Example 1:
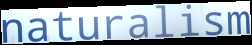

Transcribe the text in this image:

naturalism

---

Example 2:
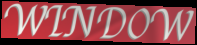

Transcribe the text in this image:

WINDOW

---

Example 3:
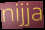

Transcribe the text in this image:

nijja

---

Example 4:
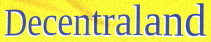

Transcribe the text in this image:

Decentraland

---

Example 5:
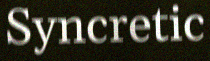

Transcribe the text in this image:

Syncretic